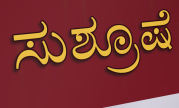
ಸುಶ್ರೂಷೆ